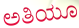
ಅತಿಯೂ